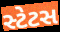
સ્ટેટસ